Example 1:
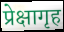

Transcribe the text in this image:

प्रेक्षागृह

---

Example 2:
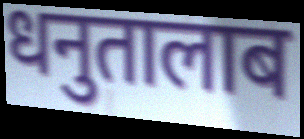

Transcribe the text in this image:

धनुतालाब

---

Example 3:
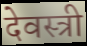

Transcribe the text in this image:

देवस्त्री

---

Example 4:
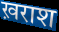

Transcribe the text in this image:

ख़राश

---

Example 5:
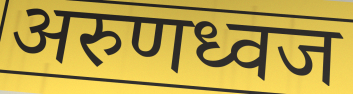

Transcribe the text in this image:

अरुणध्वज